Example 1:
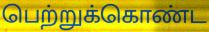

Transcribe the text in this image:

பெற்றுக்கொண்ட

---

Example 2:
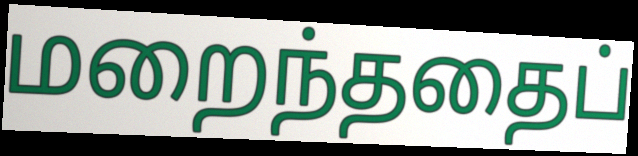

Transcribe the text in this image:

மறைந்ததைப்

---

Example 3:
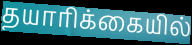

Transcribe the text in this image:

தயாரிக்கையில்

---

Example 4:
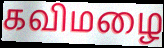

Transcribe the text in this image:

கவிமழை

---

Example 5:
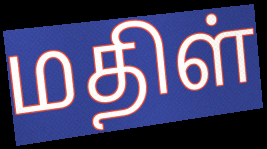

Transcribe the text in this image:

மதிள்